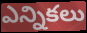
ఎన్నికలు